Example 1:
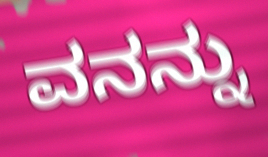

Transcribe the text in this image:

ವನನ್ನು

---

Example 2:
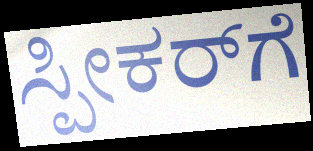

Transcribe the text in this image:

ಸ್ಪೀಕರ್‌ಗೆ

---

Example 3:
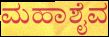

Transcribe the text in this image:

ಮಹಾಶೈವ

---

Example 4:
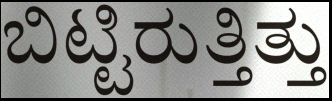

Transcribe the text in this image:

ಬಿಟ್ಟಿರುತ್ತಿತ್ತು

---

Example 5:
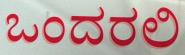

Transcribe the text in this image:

ಒಂದರಲಿ